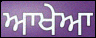
ਆਖੇਆ